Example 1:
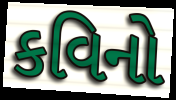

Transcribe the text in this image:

કવિનો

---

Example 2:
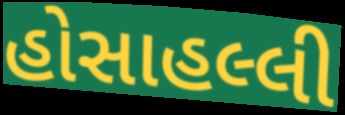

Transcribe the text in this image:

હોસાહલ્લી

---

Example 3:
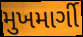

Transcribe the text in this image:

મુખમાર્ગી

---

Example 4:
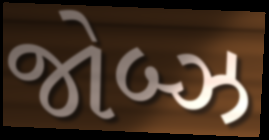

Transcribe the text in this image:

જોબ્ઝ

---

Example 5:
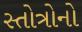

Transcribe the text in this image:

સ્તોત્રોનો